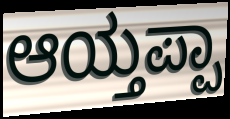
ಆಯ್ತಪ್ಪಾ